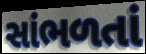
સાંભળતાં